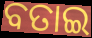
ବତାଇ